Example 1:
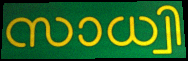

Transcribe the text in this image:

സാധ്വി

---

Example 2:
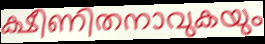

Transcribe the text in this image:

ക്ഷീണിതനാവുകയും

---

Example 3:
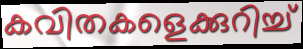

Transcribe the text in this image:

കവിതകളെക്കുറിച്ച്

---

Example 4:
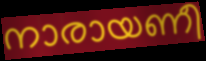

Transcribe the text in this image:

നാരായണീ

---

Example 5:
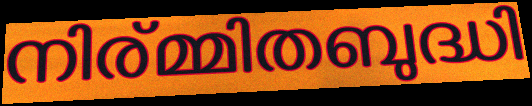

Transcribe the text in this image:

നിര്മ്മിതബുദ്ധി